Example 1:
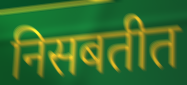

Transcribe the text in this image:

निसबतीत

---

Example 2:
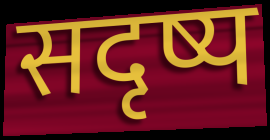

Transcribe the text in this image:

सदृष्य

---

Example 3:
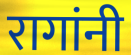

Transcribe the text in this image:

रागांनी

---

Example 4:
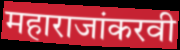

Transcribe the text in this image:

महाराजांकरवी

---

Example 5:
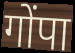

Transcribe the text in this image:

गोंपा